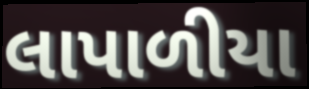
લાપાળીયા